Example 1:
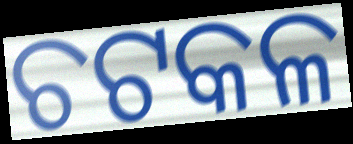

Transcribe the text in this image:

ଚଟକଳ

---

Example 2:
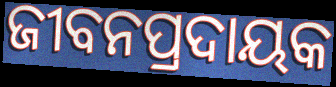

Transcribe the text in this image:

ଜୀବନପ୍ରଦାୟକ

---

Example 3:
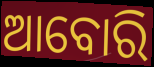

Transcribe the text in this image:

ଆବୋରି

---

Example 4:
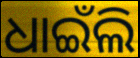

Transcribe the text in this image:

ଧାଇଁଲି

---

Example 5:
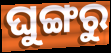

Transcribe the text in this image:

ଘୁଙ୍ଗରୁ